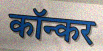
कॉन्कर